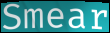
Smear